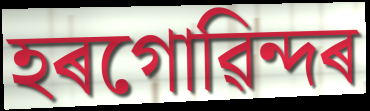
হৰগোৱিন্দৰ